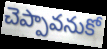
చెప్పావనుకో